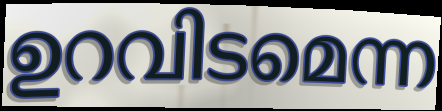
ഉറവിടമെന്ന